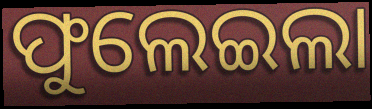
ଫୁଲେଇଲା